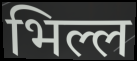
भिल्ल